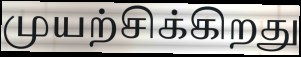
முயற்சிக்கிறது